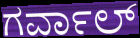
ಗರ್ವಾಲ್